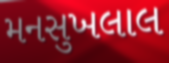
મનસુખલાલ